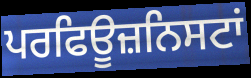
ਪਰਫਿਊਜ਼ਨਿਸਟਾਂ